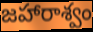
జహారాశ్వం